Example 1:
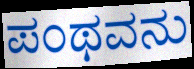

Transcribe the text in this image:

ಪಂಥವನು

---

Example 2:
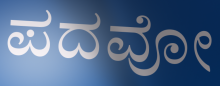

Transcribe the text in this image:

ಪದವೋ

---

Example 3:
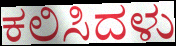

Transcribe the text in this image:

ಕಲಿಸಿದಳು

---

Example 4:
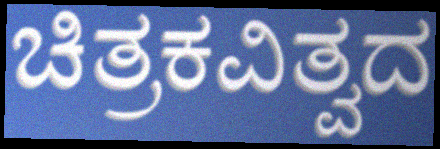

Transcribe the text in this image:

ಚಿತ್ರಕವಿತ್ವದ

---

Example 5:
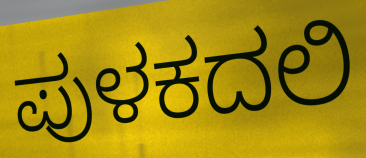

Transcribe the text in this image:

ಪುಳಕದಲಿ